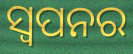
ସ୍ୱପନର